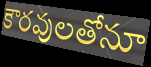
కౌరవులతోనూ